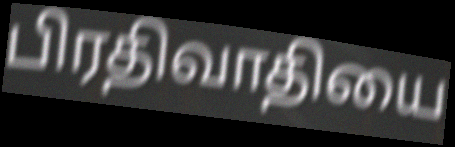
பிரதிவாதியை